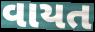
વાયત